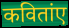
कवितांए